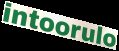
intoorulo